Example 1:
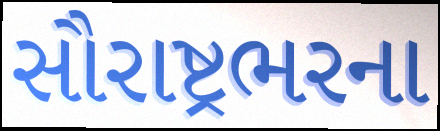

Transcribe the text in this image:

સૌરાષ્ટ્રભરના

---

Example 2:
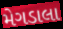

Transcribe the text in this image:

મેગડાલા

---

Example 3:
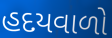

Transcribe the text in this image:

હદયવાળો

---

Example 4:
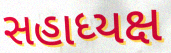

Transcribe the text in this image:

સહાધ્યક્ષ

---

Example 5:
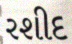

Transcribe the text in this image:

રશીદ